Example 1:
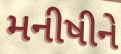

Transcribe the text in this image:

મનીષીને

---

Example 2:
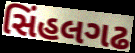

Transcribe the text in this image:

સિંહલગઢ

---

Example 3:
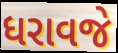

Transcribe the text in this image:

ધરાવજે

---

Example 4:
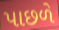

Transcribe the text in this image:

પાછળે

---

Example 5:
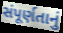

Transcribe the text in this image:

સંપૂર્ણતાનું